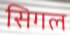
सिगल